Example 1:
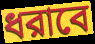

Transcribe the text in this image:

ধরাবে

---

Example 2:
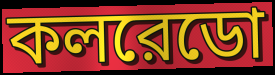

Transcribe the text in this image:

কলরেডো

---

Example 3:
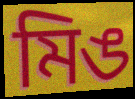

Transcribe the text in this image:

মিঙ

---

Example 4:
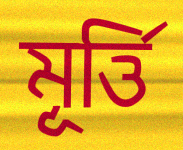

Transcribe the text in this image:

মূর্ত্তি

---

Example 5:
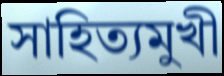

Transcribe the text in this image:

সাহিত্যমুখী